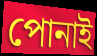
পোনাই